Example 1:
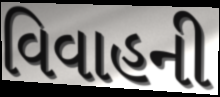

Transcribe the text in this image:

વિવાહની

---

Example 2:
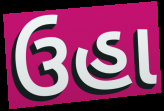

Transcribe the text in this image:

ઉહા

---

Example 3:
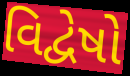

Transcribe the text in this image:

વિદ્વેષો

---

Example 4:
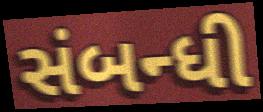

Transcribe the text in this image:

સંબન્ધી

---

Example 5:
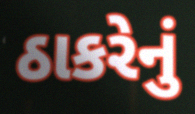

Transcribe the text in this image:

ઠાકરેનું